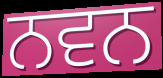
ਨਵਨ